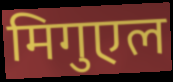
मिगुएल